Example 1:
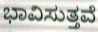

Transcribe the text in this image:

ಭಾವಿಸುತ್ತವೆ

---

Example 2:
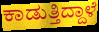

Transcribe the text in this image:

ಕಾಡುತ್ತಿದ್ದಾಳೆ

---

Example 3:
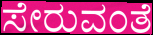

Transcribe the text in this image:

ಸೇರುವಂತೆ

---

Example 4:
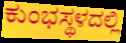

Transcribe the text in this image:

ಕುಂಭಸ್ಥಳದಲ್ಲಿ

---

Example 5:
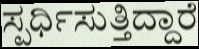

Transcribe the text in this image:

ಸ್ಪರ್ಧಿಸುತ್ತಿದ್ದಾರೆ